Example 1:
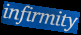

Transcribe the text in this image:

infirmity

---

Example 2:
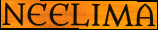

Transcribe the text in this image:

NEELIMA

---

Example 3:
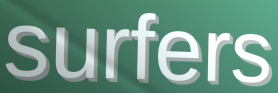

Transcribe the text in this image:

surfers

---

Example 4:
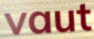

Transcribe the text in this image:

vaut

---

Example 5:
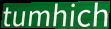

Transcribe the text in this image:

tumhich